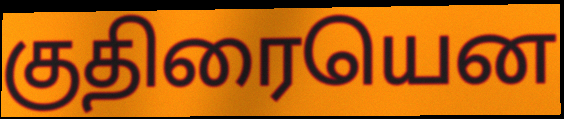
குதிரையென